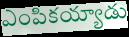
ఎంపికయ్యాడు